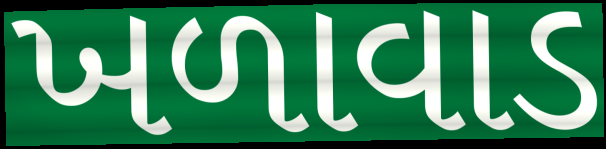
ખળાવાડ